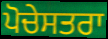
ਪੋਚੇਸਤਰਾ